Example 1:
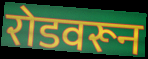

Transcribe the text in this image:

रोडवरून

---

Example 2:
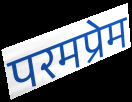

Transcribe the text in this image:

परमप्रेम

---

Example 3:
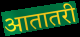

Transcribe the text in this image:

आतातरी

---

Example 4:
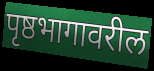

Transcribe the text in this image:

पृष्ठभागावरील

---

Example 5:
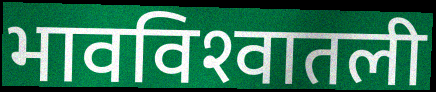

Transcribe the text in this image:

भावविश्वातली